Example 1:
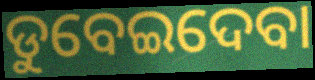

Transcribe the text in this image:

ଡୁବେଇଦେବା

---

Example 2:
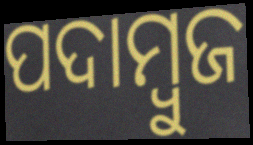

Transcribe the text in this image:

ପଦାମ୍ବୁଜ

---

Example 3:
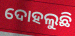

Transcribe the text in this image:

ଦୋହଲୁଛି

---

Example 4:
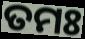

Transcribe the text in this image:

ତମଃ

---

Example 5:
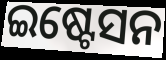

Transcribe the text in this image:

ଇଷ୍ଟେସନ